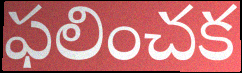
ఫలించక